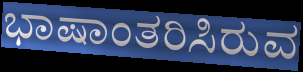
ಭಾಷಾಂತರಿಸಿರುವ